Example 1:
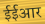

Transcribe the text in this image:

ईईआर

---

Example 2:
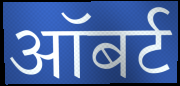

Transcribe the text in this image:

ऑबर्ट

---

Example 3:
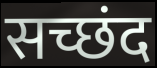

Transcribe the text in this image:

सच्छंद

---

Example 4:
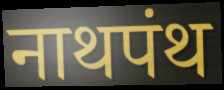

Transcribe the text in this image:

नाथपंथ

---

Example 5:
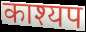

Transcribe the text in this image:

काश्यप